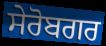
ਸੇਰੋਬਗਰ